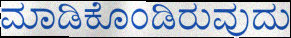
ಮಾಡಿಕೊಂಡಿರುವುದು